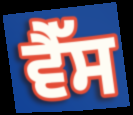
ਵੈੱਸ